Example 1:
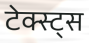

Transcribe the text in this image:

टेक्स्ट्स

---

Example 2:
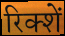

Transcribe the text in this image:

रिक्शें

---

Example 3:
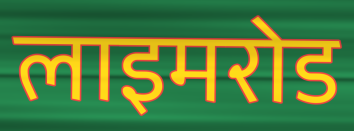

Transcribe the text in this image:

लाइमरोड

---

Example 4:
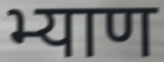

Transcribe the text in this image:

भ्याण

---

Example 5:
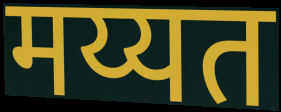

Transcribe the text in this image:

मय्यत